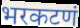
भरकटणं